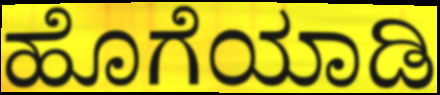
ಹೊಗೆಯಾಡಿ